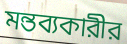
মন্তব্যকারীর